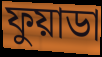
ফুয়াডা